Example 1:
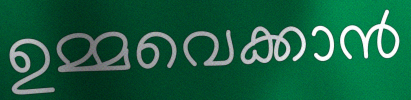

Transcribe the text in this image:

ഉമ്മവെക്കാൻ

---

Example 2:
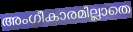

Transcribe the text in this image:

അംഗീകാരമില്ലാതെ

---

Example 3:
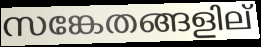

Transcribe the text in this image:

സങ്കേതങ്ങളില്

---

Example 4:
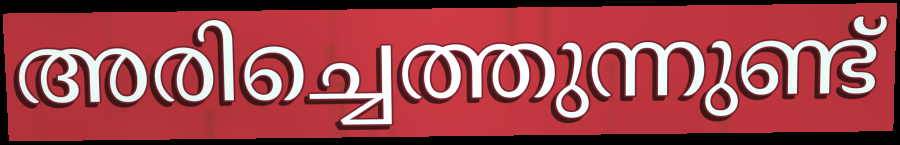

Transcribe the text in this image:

അരിച്ചെത്തുന്നുണ്ട്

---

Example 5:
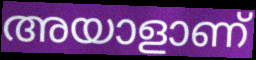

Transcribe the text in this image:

അയാളാണ്